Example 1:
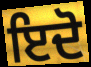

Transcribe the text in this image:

ਇਦੋ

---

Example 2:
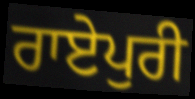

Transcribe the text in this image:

ਰਾਏਪੁਰੀ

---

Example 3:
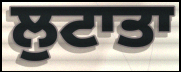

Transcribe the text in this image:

ਲੁਟਾਤਾ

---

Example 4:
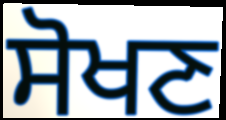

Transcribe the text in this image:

ਸੋਖਣ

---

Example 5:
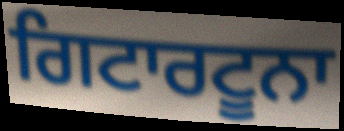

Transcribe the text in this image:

ਗਿਟਾਰਟੂਨਾ